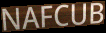
NAFCUB